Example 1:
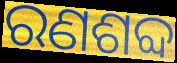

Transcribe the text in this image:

ରଣଶବ୍ଦ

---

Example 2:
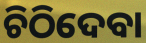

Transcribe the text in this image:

ଚିଠିଦେବା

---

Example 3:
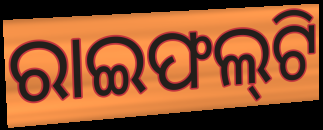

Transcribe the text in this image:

ରାଇଫଲ୍‌ଟି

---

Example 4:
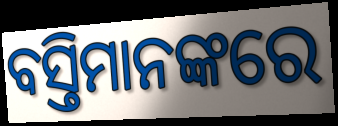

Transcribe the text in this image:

ବସ୍ତିମାନଙ୍କରେ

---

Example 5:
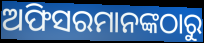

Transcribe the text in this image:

ଅଫିସରମାନଙ୍କଠାରୁ